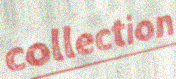
collection